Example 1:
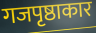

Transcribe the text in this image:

गजपृष्ठाकार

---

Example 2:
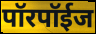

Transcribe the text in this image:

पॉरपॉईज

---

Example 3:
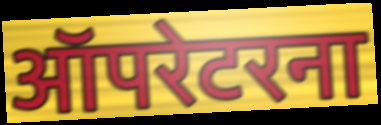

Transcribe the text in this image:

ऑपरेटरना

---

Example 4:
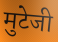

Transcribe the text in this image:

मुटेजी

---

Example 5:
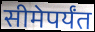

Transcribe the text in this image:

सीमेपर्यंत